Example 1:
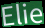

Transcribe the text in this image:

Elie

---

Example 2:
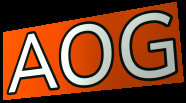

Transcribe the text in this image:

AOG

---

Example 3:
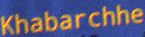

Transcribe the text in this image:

Khabarchhe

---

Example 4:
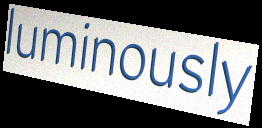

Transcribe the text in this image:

luminously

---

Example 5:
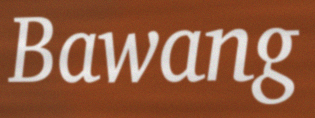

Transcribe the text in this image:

Bawang